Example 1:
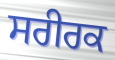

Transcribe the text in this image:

ਸਰੀਰਕ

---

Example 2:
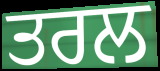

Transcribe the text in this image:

ਤਰਲ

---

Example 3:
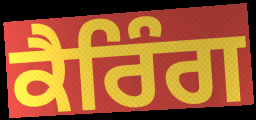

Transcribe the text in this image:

ਕੈਰਿੰਗ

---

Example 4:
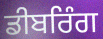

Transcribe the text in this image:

ਡੀਬਰਿੰਗ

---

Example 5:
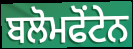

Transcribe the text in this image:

ਬਲੋਮਫੋਂਟੇਨ